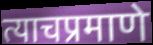
त्याचप्रमाणे